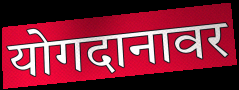
योगदानावर